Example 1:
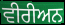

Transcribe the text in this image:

ਵੀਰੀਅਨ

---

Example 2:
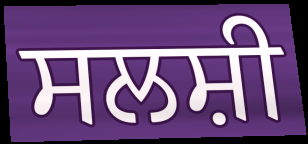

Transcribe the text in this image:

ਸਲਸ਼ੀ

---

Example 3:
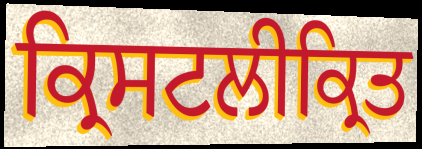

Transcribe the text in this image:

ਕ੍ਰਿਸਟਲੀਕ੍ਰਿਤ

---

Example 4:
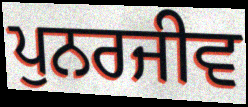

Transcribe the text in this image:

ਪੁਨਰਜੀਵ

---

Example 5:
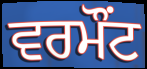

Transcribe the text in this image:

ਵਰਮੌਂਟ